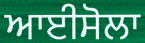
ਆਈਸੋਲਾ